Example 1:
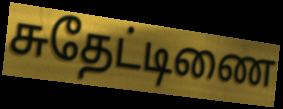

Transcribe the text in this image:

சுதேட்டிணை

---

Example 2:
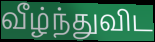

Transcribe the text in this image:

வீழ்ந்துவிட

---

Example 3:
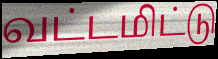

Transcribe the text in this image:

வட்டமிட்டு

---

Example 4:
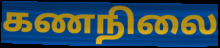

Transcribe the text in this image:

கணநிலை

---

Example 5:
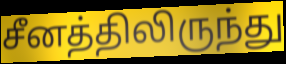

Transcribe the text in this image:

சீனத்திலிருந்து